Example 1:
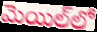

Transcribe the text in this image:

మెయిల్‌లో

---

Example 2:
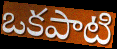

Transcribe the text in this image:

ఒకపాటి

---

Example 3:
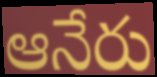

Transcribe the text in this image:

ఆనేరు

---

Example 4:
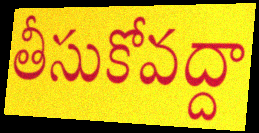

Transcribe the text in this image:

తీసుకోవద్దా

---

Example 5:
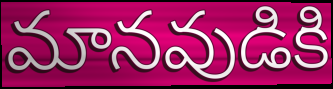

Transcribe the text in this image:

మానవుడికి